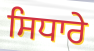
ਸਿਧਾਰੇ